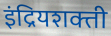
इंद्रियशक्ती